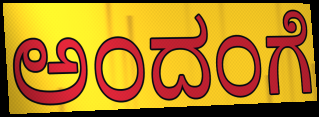
ಅಂದಂಗೆ